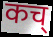
कच्